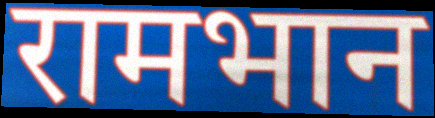
रामभान